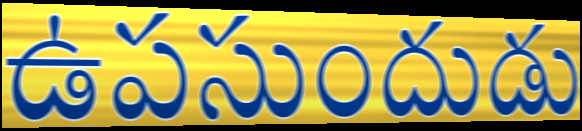
ఉపసుందుడు